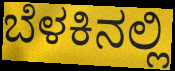
ಬೆಳಕಿನಲ್ಲಿ